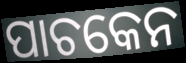
ପାଚକେନ